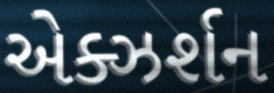
એક્ઝર્શન